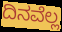
ದಿನವೆಲ್ಲ